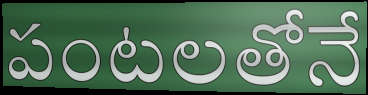
పంటలతోనే